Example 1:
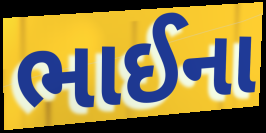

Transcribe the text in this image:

ભાઈના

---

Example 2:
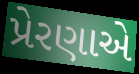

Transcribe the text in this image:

પ્રેરણાએ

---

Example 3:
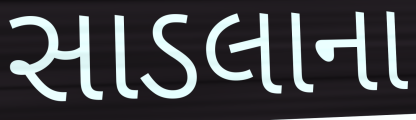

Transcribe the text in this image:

સાડલાના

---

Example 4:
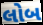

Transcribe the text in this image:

લોબ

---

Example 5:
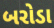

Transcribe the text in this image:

બરોડા